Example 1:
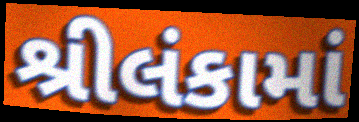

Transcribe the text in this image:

શ્રીલંકામાં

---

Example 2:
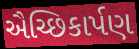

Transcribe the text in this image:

ઐચ્છિકાર્પણ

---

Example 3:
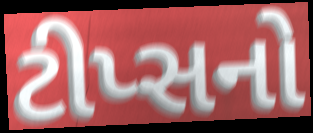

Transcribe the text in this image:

ટીપ્સનો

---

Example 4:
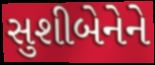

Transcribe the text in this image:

સુશીબેનેને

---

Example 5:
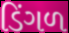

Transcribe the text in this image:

ડિંગળ